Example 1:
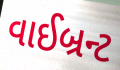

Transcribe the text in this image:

વાઈબ્રન્ટ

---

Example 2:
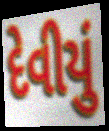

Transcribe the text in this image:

દેવીયું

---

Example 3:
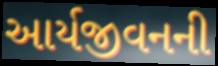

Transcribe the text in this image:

આર્યજીવનની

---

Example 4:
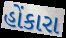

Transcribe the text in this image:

હોંકારા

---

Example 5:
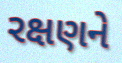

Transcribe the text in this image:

રક્ષણને